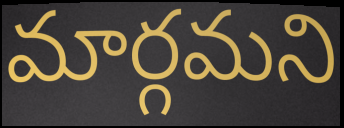
మార్గమని